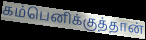
கம்பெனிக்குத்தான்